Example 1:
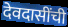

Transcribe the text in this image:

देवदासींची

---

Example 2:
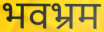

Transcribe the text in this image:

भवभ्रम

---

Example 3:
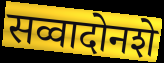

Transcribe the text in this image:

सव्वादोनशे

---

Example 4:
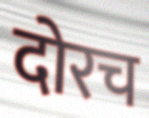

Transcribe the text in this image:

दोरच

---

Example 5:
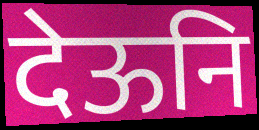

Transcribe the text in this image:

देऊनि